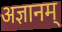
अज्ञानम्